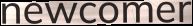
newcomer